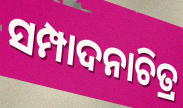
ସମ୍ପାଦନାଚିତ୍ର